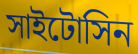
সাইটোসিন